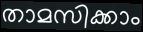
താമസിക്കാം